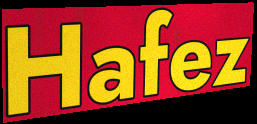
Hafez